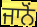
ਜਾਨੋਂ